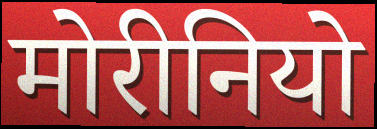
मोरीनियो